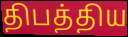
திபத்திய